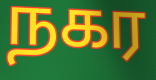
நகர